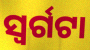
ସ୍ୱର୍ଗଟା